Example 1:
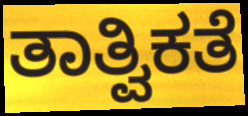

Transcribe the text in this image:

ತಾತ್ವಿಕತೆ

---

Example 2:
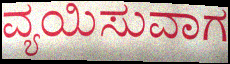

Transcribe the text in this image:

ವ್ಯಯಿಸುವಾಗ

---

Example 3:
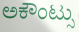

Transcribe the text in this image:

ಅಕೌಂಟ್ಸು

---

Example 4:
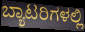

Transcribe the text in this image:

ಬ್ಯಾಟರಿಗಳಲ್ಲಿ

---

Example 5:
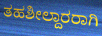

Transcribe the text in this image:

ತಹಶೀಲ್ದಾರರಾಗಿ